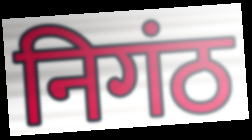
निगंठ